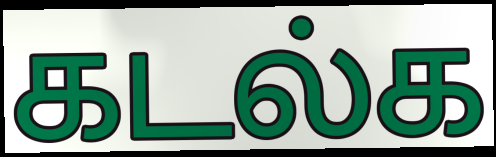
கடல்க